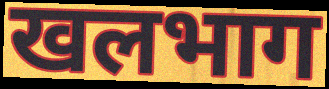
खलभाग